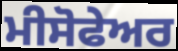
ਮੀਸੋਫੇਅਰ